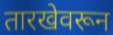
तारखेवरून